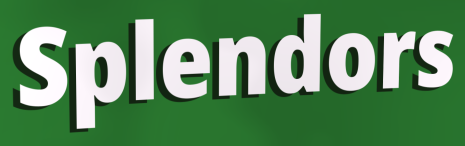
Splendors